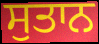
ਸੁਤਾਨ